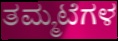
ತಮ್ಮಟೆಗಳ